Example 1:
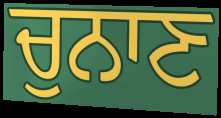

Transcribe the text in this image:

ਚੁਨਾਣ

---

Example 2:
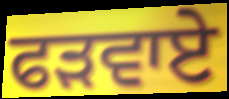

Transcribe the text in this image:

ਫੜਵਾਏ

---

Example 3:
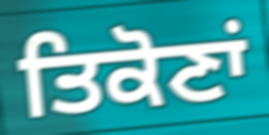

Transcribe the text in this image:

ਤਿਕੋਣਾਂ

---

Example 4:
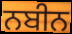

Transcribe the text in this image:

ਨਬੀਨ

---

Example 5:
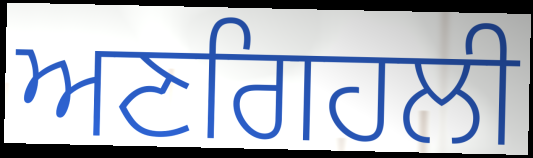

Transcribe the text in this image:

ਅਣਗਿਹਲੀ